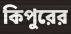
কিপুরের